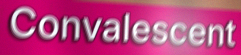
Convalescent